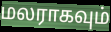
மலராகவும்